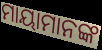
ମାୟାମାନଙ୍କ